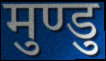
मुण्डु